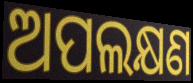
ଅପଲକ୍ଷଣ